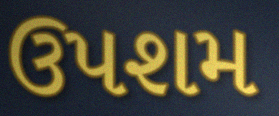
ઉપશમ